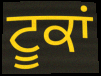
ਟੂਕਾਂ